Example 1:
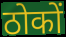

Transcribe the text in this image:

ठोकों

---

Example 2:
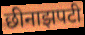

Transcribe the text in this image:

छीनाझपटी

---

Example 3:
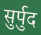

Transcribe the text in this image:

सुर्पुद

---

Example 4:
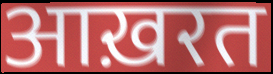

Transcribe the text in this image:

आख़रत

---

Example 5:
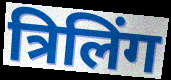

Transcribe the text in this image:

त्रिलिंग